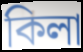
কিলা